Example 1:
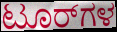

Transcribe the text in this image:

ಟೂರ್‌ಗಳ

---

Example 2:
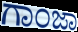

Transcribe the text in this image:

ಗಾಂಜಾ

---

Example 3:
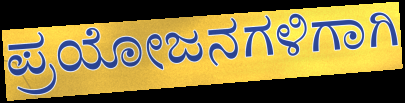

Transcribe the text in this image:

ಪ್ರಯೋಜನಗಳಿಗಾಗಿ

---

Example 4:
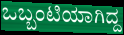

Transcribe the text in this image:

ಒಬ್ಬಂಟಿಯಾಗಿದ್ದ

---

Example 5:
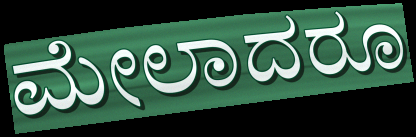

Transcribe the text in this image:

ಮೇಲಾದರೂ